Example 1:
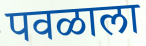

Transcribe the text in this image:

पवळाला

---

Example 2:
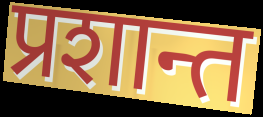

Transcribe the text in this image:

प्रशान्त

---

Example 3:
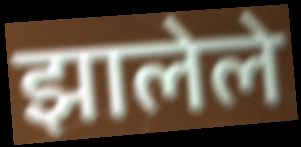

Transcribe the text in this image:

झालेले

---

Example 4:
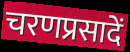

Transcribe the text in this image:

चरणप्रसादें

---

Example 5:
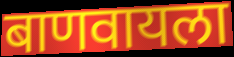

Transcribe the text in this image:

बाणवायला